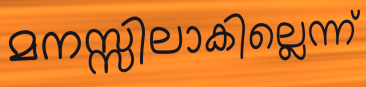
മനസ്സിലാകില്ലെന്ന്